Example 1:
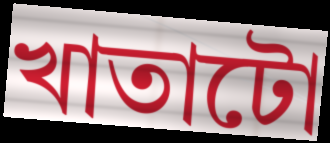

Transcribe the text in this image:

খাতাটো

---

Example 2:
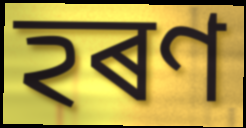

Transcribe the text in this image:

হৰণ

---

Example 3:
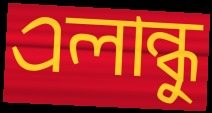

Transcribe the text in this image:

এলান্ধু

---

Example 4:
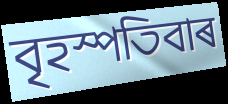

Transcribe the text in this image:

বৃহস্পতিবাৰ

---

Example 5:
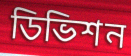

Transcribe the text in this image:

ডিভিশন